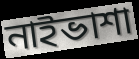
নাইভাশা